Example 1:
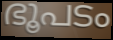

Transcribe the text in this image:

ഭൂപടം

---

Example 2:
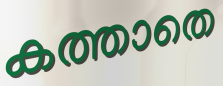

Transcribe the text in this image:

കത്താതെ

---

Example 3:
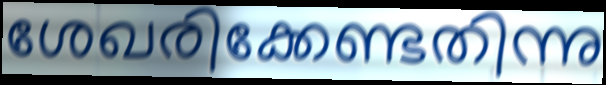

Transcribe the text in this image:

ശേഖരിക്കേണ്ടതിന്നു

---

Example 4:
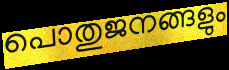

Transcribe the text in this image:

പൊതുജനങ്ങളും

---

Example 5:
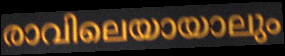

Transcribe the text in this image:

രാവിലെയായാലും